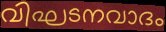
വിഘടനവാദം